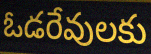
ఓడరేవులకు